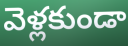
వెళ్లకుండా